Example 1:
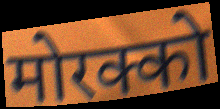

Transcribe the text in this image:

मोरक्को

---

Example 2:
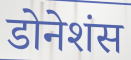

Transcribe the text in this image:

डोनेशंस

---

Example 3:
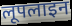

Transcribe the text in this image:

लूपलाइन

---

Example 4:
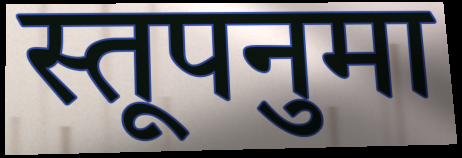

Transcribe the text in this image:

स्तूपनुमा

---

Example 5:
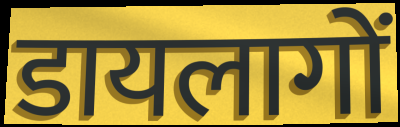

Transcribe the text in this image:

डायलागों